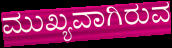
ಮುಖ್ಯವಾಗಿರುವ